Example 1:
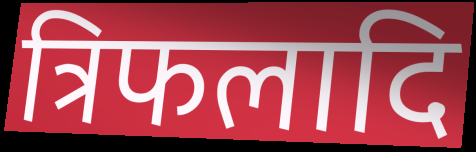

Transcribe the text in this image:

त्रिफलादि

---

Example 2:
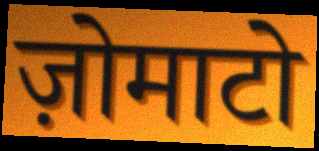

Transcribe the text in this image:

ज़ोमाटो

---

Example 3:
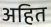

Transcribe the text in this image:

अहित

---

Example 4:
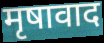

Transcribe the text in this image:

मृषावाद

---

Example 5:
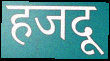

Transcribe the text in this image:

हजदू